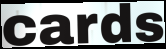
cards